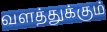
வளத்துக்கும்